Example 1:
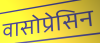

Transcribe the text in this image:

वासोप्रेसिन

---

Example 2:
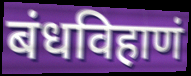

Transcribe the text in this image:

बंधविहाणं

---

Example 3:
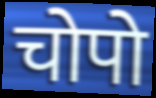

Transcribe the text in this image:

चोपो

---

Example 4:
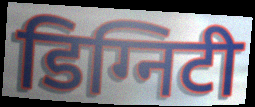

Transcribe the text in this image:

डिग्निटी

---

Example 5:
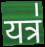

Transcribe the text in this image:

यत्र॑